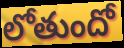
లోతుందో